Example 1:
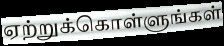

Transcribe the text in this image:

ஏற்றுக்கொள்ளுங்கள்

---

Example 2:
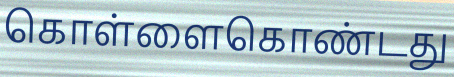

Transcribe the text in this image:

கொள்ளைகொண்டது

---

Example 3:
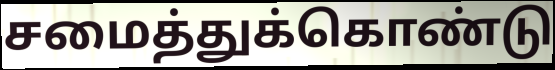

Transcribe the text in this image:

சமைத்துக்கொண்டு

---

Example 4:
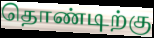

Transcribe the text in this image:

தொண்டிற்கு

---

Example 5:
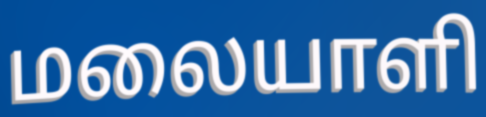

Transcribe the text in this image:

மலையாளி